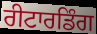
ਰੀਟਾਰਡਿੰਗ